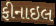
ફીનાઇલ